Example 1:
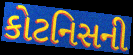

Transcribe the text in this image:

કોટનિસની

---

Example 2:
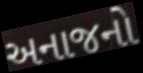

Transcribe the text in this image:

અનાજનો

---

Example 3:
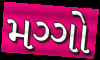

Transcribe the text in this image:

મગ્ગો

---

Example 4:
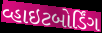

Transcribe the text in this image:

વ્હાઇટબોર્ડિંગ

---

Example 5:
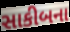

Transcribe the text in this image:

સાકીબના